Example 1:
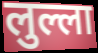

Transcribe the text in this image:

लुल्ला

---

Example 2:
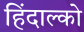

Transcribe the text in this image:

हिंदाल्को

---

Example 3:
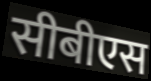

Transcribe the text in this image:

सीबीएस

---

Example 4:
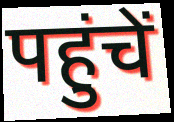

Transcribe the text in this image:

पहुंचें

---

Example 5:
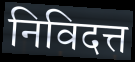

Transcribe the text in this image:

निविदत्त